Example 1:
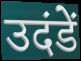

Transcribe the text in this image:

उदंडें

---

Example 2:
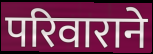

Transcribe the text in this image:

परिवाराने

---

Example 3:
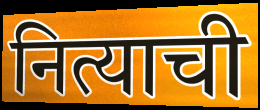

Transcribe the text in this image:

नित्याची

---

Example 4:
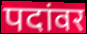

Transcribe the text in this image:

पदांवर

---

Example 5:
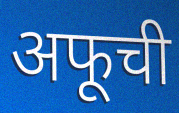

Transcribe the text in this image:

अफूची